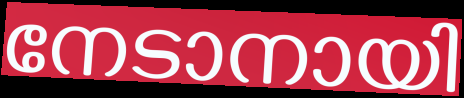
നേടാനായി